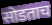
सोडताच